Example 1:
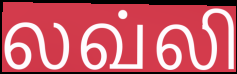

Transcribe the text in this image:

லவ்லி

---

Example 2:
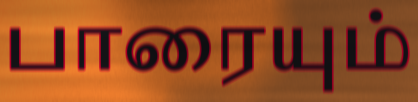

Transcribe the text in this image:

பாரையும்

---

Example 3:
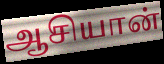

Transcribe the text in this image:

ஆசியான்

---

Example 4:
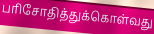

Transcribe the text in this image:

பரிசோதித்துக்கொள்வது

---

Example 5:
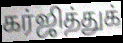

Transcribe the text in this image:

கர்ஜித்துக்